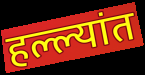
हल्ल्यांत